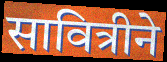
सावित्रीने